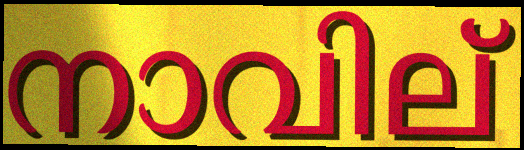
നാവില്